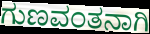
ಗುಣವಂತನಾಗಿ